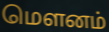
மௌனம்